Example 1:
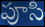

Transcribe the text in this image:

పూసి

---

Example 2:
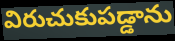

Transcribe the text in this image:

విరుచుకుపడ్డాను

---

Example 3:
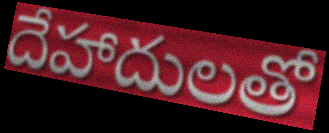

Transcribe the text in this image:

దేహాదులతో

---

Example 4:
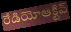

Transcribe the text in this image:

రేడియోఆక్టివ్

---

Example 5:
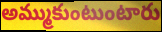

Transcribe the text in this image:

అమ్ముకుంటుంటారు